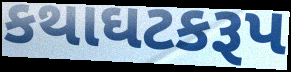
કથાઘટકરૂપ